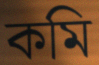
কমি